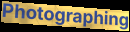
Photographing